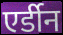
एर्डीन